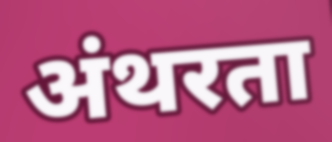
अंथरता